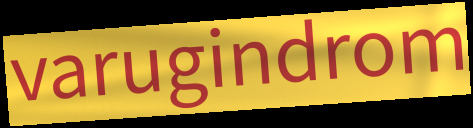
varugindrom